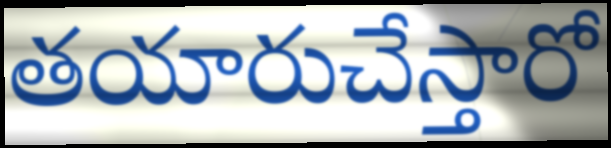
తయారుచేస్తారో